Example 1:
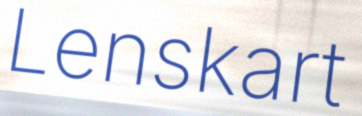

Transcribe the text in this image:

Lenskart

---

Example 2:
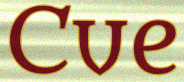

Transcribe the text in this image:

Cue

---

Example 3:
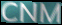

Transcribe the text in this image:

CNM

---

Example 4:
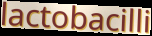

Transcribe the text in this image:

lactobacilli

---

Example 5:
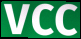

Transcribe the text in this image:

vcc